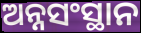
ଅନ୍ନସଂସ୍ଥାନ